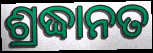
ଶ୍ରଦ୍ଧାନତ